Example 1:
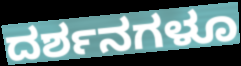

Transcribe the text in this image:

ದರ್ಶನಗಳೂ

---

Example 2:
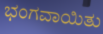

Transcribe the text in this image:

ಭಂಗವಾಯಿತು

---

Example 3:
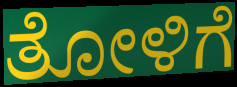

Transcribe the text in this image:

ತೋಳಿಗೆ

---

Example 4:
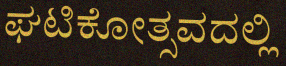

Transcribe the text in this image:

ಘಟಿಕೋತ್ಸವದಲ್ಲಿ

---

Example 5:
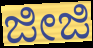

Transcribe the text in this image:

ಜೀಜಿ